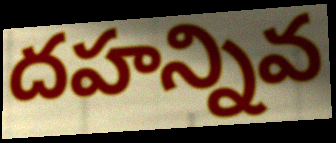
దహన్నివ